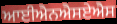
ਆਈਐਨਐਸਏਐਸ